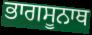
ਭਾਗਸੂਨਾਥ